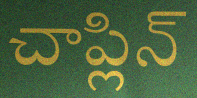
చాప్లిన్